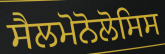
ਸੈਲਮੋਨੋਲੋਸਿਸ